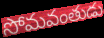
సోమవంతుడు